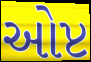
ઓપ્ટ